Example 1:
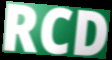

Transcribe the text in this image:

RCD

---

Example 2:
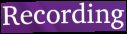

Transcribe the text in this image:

Recording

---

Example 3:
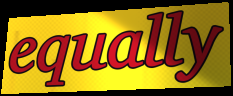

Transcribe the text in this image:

equally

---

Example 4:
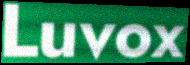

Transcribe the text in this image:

Luvox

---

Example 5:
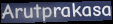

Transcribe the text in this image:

Arutprakasa